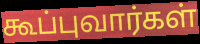
கூப்புவார்கள்